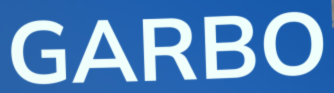
GARBO